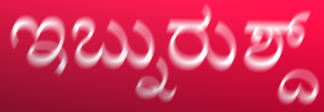
ಇಬ್ನುರುಶ್ದ್